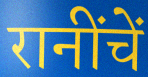
रानींचें